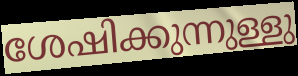
ശേഷിക്കുന്നുള്ളു